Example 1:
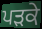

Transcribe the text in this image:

ਪੜਕੇ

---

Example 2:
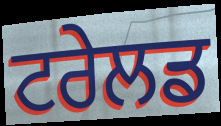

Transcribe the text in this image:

ਟਰੇਲਡ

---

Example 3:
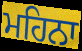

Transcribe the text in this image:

ਮਹਿਨਾ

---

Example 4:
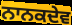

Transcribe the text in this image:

ਨਾਨਕਦੇਵ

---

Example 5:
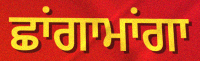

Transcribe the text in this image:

ਛਾਂਗਾਮਾਂਗਾ